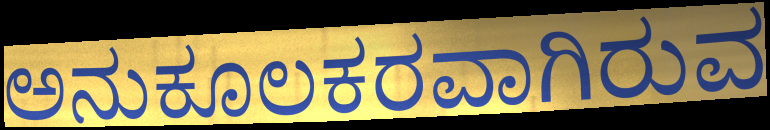
ಅನುಕೂಲಕರವಾಗಿರುವ